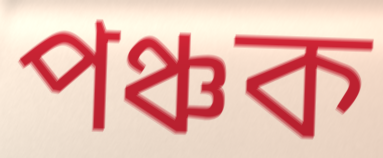
পঞ্চক